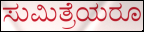
ಸುಮಿತ್ರೆಯರೂ